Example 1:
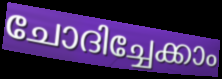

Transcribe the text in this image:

ചോദിച്ചേക്കാം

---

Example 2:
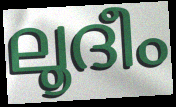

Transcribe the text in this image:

ലൂദീം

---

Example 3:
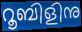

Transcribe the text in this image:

റൂബിളിനു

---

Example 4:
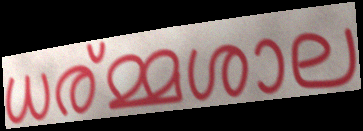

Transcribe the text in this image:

ധര്മ്മശാല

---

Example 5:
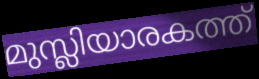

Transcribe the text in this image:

മുസ്ലിയാരകത്ത്